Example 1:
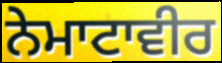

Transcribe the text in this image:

ਨੇਮਾਟਾਵੀਰ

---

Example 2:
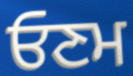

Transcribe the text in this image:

ਓਣਮ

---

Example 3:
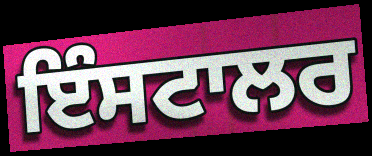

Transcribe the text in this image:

ਇੰਸਟਾਲਰ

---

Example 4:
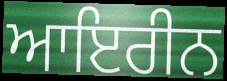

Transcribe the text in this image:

ਆਇਰੀਨ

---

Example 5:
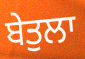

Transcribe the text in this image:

ਬੇਤੁਲਾ